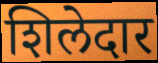
शिलेदार